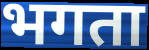
भगता